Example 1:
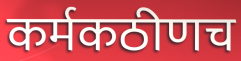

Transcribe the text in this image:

कर्मकठीणच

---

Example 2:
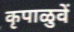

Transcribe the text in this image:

कृपाळुवें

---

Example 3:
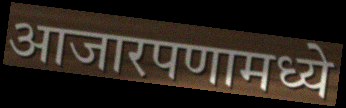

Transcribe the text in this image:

आजारपणामध्ये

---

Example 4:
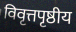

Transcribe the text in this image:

विवृत्तपृष्ठीय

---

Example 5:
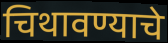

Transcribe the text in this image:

चिथावण्याचे